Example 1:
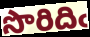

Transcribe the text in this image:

సొరిదిఁ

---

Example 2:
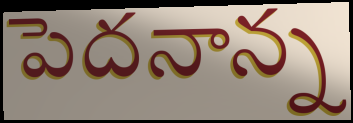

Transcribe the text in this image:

పెదనాన్న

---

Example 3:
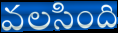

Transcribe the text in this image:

వలసింది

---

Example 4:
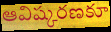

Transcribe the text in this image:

ఆవిష్కరణకూ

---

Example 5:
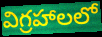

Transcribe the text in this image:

విగ్రహాలలో